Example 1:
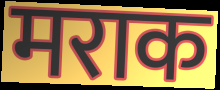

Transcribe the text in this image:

मराक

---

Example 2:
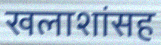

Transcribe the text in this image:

खलाशांसह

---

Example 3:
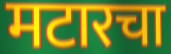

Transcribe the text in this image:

मटारचा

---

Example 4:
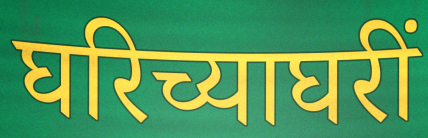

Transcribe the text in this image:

घरिच्याघरीं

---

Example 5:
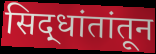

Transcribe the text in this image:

सिद्धांतांतून